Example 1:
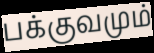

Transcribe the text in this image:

பக்குவமும்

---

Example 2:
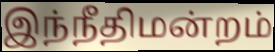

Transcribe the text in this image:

இந்நீதிமன்றம்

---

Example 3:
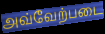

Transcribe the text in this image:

அவ்வேற்படை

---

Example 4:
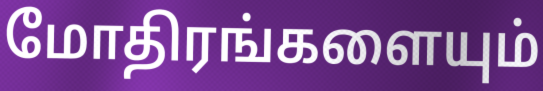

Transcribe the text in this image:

மோதிரங்களையும்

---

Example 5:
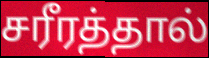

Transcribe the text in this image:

சரீரத்தால்